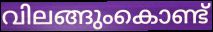
വിലങ്ങുംകൊണ്ട്